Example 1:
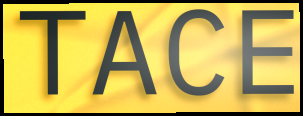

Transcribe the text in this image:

TACE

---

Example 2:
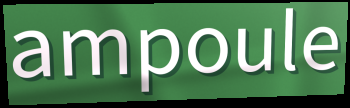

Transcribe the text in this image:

ampoule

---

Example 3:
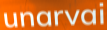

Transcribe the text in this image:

unarvai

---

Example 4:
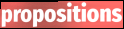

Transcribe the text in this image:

propositions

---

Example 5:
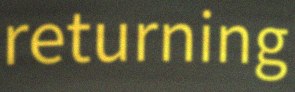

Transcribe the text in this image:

returning